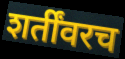
शर्तींवरच